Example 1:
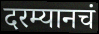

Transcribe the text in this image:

दरम्यानचं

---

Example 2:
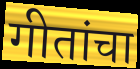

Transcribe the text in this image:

गीतांचा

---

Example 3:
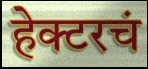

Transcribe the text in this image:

हेक्टरचं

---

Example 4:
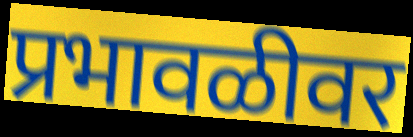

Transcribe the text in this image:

प्रभावळीवर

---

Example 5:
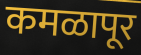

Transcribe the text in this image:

कमळापूर